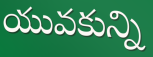
యువకున్ని